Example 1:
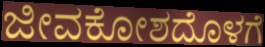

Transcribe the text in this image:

ಜೀವಕೋಶದೊಳಗೆ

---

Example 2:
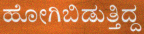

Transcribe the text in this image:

ಹೋಗಿಬಿಡುತ್ತಿದ್ದ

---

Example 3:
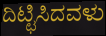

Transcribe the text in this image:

ದಿಟ್ಟಿಸಿದವಳು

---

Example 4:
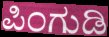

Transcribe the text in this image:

ಪಿಂಗುಡಿ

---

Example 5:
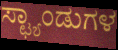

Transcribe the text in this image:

ಸ್ಟ್ಯಾಂಡುಗಳ